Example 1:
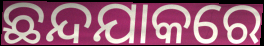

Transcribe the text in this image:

ଛନ୍ଦଯାକରେ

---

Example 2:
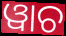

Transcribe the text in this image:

ୱାଚ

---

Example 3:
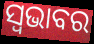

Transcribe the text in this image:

ସ୍ଵଭାବର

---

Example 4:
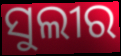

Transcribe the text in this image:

ସୁଲୀର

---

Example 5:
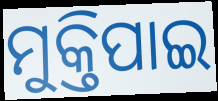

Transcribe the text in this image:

ମୁକ୍ତିପାଇ